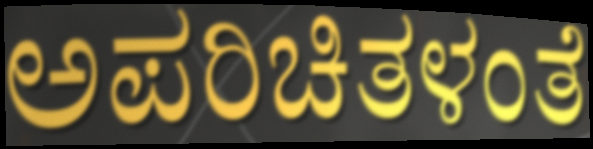
ಅಪರಿಚಿತಳಂತೆ